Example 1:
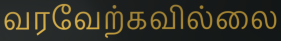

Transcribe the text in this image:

வரவேற்கவில்லை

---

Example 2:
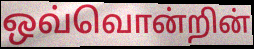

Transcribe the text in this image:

ஒவ்வொன்றின்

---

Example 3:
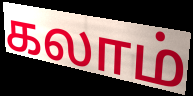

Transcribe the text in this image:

கலாம்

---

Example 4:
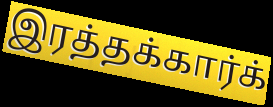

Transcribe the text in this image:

இரத்தக்கார்க்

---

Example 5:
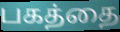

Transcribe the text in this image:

பகத்தை